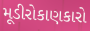
મૂડીરોકાણકારો